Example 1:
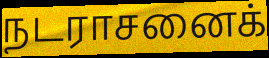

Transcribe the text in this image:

நடராசனைக்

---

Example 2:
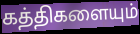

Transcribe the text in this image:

கத்திகளையும்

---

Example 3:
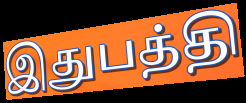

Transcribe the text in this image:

இதுபத்தி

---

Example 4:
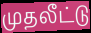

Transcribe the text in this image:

முதலீட்டு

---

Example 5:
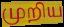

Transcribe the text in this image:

முறிய